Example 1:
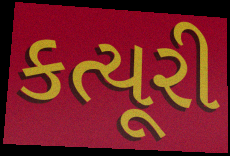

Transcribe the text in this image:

કત્યૂરી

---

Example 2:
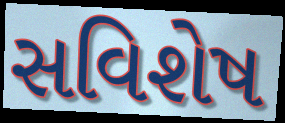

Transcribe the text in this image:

સવિશેષ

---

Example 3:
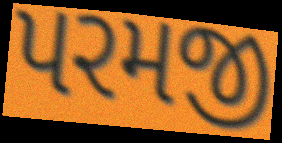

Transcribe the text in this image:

પરમજી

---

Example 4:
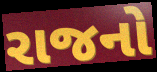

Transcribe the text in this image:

રાજનો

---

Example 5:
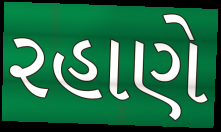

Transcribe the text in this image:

રહાણે